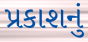
પ્રકાશનું